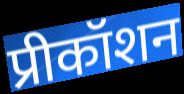
प्रीकॉशन